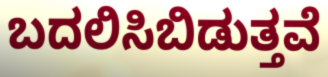
ಬದಲಿಸಿಬಿಡುತ್ತವೆ